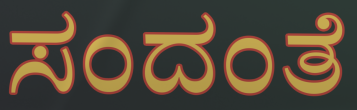
ಸಂದಂತೆ